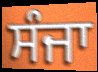
ਸੰਜਾ